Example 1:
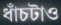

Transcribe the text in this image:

ধাঁচটাও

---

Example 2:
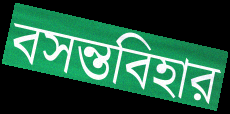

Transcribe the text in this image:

বসন্তবিহার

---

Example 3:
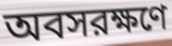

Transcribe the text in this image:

অবসরক্ষণে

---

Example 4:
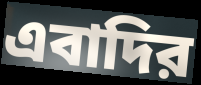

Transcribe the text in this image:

এবাদির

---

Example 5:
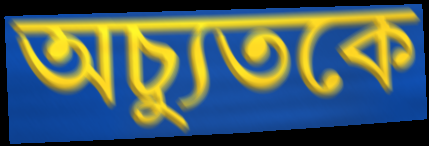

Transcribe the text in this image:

অচ্যুতকে